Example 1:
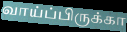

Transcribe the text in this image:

வாய்ப்பிருக்கா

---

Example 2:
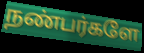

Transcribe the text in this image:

நண்பர்களே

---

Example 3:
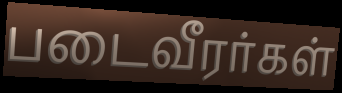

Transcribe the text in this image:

படைவீரர்கள்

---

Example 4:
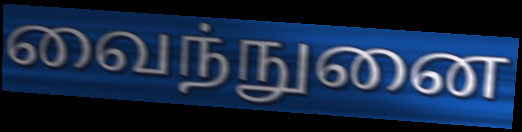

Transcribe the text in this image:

வைந்நுனை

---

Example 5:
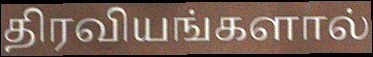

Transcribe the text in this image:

திரவியங்களால்